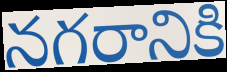
నగరానికి